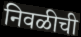
निवळीची